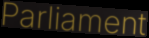
Parliament